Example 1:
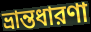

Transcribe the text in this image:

ভ্রান্তধারণা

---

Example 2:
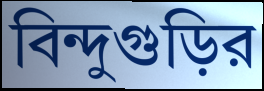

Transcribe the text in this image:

বিন্দুগুড়ির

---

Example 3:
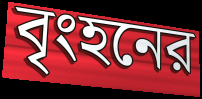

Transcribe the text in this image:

বৃংহনের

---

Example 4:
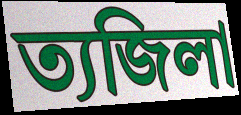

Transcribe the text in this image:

ত্যজিলা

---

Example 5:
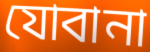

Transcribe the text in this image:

যোবানা